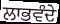
ਲਾਭਵੰਦੇ